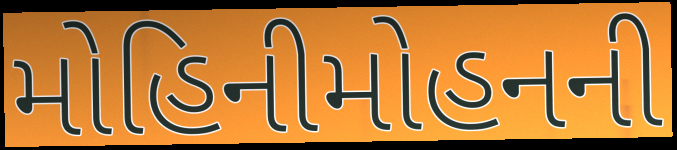
મોહિનીમોહનની